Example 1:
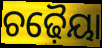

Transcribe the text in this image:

ଚଢ଼ୈୟା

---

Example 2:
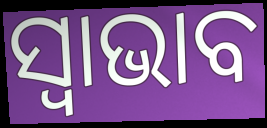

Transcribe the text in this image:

ସ୍ୱାଭାବ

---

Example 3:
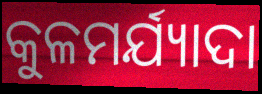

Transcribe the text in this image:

କୁଳମର୍ଯ୍ୟାଦା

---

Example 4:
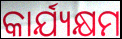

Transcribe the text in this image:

କାର୍ଯ୍ୟକ୍ଷମ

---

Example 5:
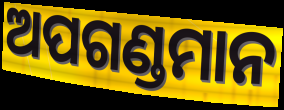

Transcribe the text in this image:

ଅପଗଣ୍ଡମାନ